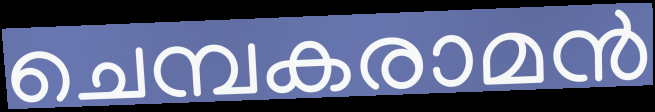
ചെമ്പകരാമൻ